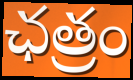
ఛత్రం